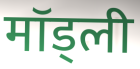
मॉड्ली